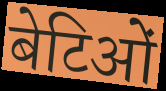
बेटिओं